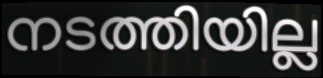
നടത്തിയില്ല